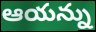
ఆయన్ను